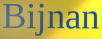
Bijnan